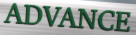
ADVANCE